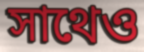
সাথেও